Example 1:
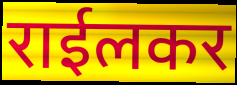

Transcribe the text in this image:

राईलकर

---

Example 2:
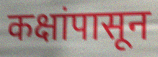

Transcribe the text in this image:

कक्षांपासून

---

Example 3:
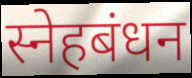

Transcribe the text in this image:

स्नेहबंधन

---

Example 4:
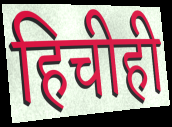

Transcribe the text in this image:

हिचीही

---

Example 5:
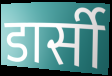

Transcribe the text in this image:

डार्सी